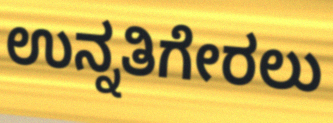
ಉನ್ನತಿಗೇರಲು